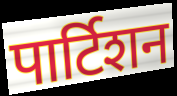
पार्टिशन